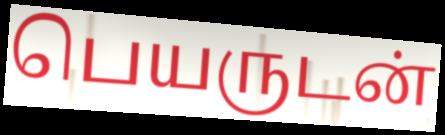
பெயருடன்